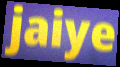
jaiye